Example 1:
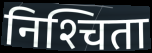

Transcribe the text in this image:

निश्चिता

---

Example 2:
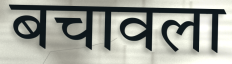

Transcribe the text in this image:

बचावला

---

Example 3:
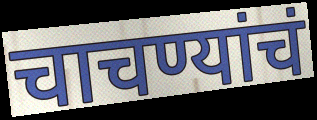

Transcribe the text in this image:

चाचण्यांचं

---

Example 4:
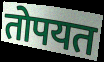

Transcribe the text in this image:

तोपयत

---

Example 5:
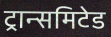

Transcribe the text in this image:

ट्रान्समिटेड